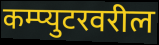
कम्प्युटरवरील